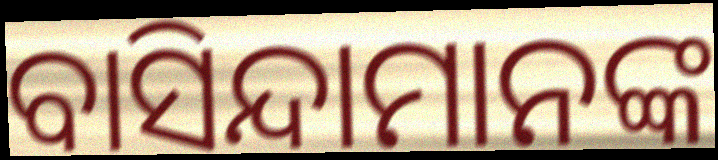
ବାସିନ୍ଦାମାନଙ୍କ